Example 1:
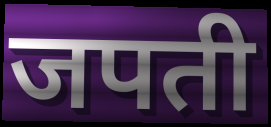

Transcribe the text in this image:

जपती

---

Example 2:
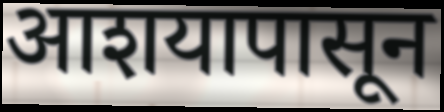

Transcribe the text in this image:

आशयापासून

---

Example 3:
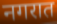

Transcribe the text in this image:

नगरात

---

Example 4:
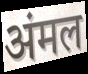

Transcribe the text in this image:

अंमल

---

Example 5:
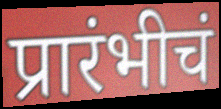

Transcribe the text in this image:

प्रारंभीचं